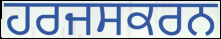
ਹਰਜਸਕਰਨ